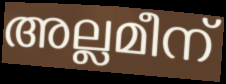
അല്ലമീന്